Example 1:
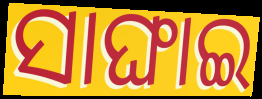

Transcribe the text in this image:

ସାଙ୍ଘାଇ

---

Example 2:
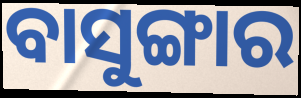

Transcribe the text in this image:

ବାସୁଙ୍ଗାର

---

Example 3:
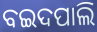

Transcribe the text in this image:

ବଇଦପାଲି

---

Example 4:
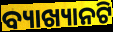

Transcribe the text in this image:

ବ୍ୟାଖ୍ୟାନଟି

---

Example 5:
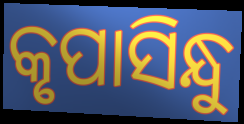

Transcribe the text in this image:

କୃପାସିନ୍ଧୁ